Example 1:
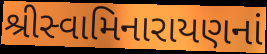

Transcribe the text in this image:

શ્રીસ્વામિનારાયણનાં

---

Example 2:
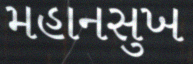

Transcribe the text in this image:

મહાનસુખ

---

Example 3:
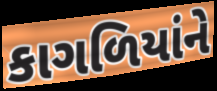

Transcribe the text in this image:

કાગળિયાંને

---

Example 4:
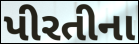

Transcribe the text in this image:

પીરતીના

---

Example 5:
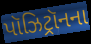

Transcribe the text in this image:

પૉઝિટ્રૉનના